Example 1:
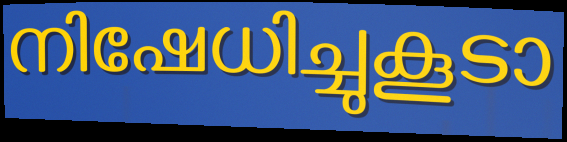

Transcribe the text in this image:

നിഷേധിച്ചുകൂടാ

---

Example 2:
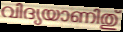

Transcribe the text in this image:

വിദ്യയാണിതു്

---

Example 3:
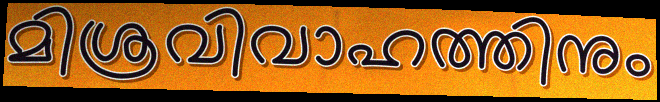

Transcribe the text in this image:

മിശ്രവിവാഹത്തിനും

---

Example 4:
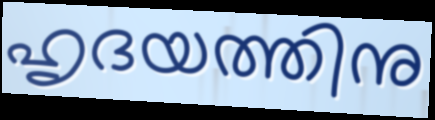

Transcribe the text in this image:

ഹൃദയത്തിനു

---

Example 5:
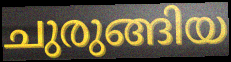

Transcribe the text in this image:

ചുരുങ്ങിയ